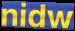
nidw